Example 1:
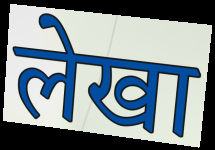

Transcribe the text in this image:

लेखा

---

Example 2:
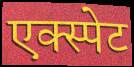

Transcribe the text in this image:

एक्स्पेट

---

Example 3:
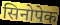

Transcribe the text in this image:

सिनोपेक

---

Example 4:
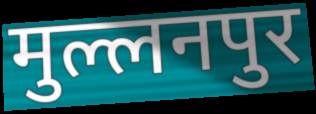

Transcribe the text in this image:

मुल्लनपुर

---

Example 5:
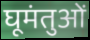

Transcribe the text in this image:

घूमंतुओं